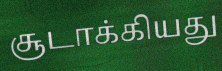
சூடாக்கியது